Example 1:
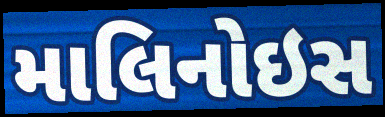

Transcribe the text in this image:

માલિનોઇસ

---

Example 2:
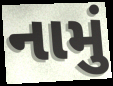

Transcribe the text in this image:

નામું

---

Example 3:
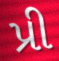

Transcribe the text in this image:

પ્રી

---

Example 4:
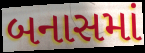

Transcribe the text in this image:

બનાસમાં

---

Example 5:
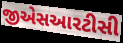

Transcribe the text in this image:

જીએસઆરટીસી